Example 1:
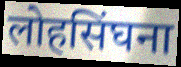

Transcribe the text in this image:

लोहसिंघना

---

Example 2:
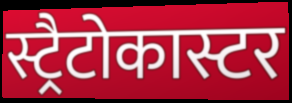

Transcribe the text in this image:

स्ट्रैटोकास्टर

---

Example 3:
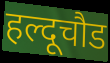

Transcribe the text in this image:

हल्दूचौड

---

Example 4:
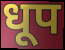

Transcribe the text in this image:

धूप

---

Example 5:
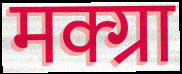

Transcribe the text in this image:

मक्ग्रा